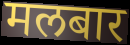
मलबार